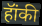
हॉंकी